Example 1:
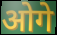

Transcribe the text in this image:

ओगे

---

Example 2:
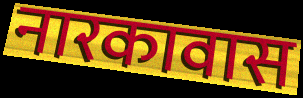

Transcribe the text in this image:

नारकावास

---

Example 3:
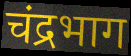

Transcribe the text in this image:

चंद्रभाग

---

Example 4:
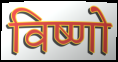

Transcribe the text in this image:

विष्णो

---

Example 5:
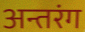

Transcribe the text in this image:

अन्तरंग